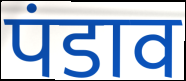
पंडाव